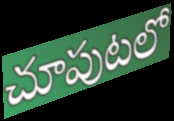
చూపుటలో